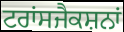
ਟਰਾਂਸਜੈਕਸ਼ਨਾਂ